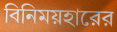
বিনিময়হারের